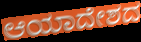
ಆಯಾದೇಶದ